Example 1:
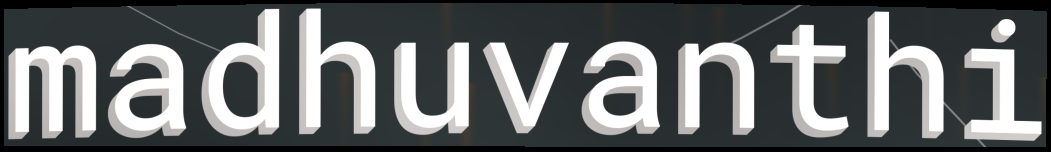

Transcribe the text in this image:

madhuvanthi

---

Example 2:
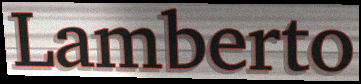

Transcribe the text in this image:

Lamberto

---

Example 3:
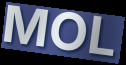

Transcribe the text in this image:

MOL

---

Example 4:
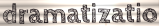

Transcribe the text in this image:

dramatizatio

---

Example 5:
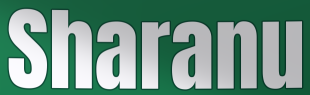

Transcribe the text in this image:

Sharanu